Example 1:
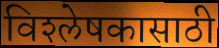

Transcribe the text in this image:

विश्लेषकासाठी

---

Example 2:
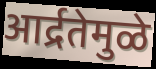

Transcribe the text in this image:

आर्द्रतेमुळे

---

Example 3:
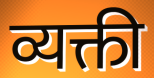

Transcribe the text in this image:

व्यक्ती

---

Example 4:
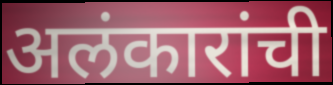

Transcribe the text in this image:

अलंकारांची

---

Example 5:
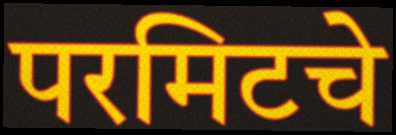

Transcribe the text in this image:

परमिटचे